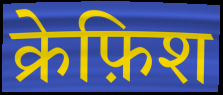
क्रेफ़िश